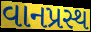
વાનપ્રસ્થ